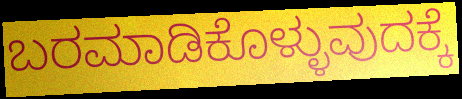
ಬರಮಾಡಿಕೊಳ್ಳುವುದಕ್ಕೆ